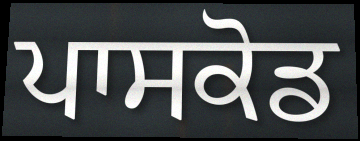
ਪਾਸਕੋਡ